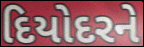
દિયોદરને